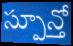
స్పూన్తో